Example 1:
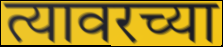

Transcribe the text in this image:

त्यावरच्या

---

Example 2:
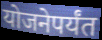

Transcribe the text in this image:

योजनेपर्यंत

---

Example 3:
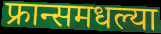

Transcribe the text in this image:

फ्रान्समधल्या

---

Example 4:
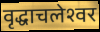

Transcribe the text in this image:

वृद्धाचलेश्वर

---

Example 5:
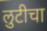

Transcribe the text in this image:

लुटीचा